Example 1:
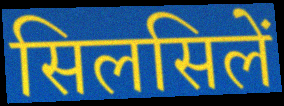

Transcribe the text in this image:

सिलसिलें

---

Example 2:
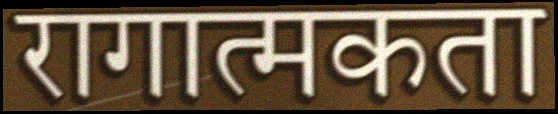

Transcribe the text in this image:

रागात्मकता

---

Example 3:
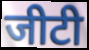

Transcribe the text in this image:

जीटी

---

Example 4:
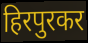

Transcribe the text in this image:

हिरपुरकर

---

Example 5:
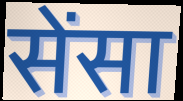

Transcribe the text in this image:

सेंसा